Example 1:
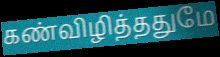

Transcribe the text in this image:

கண்விழித்ததுமே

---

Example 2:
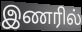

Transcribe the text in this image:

இணரில்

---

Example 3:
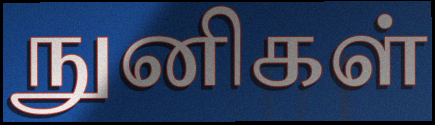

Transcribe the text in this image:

நுனிகள்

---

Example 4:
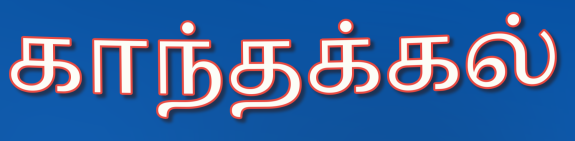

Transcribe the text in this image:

காந்தக்கல்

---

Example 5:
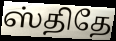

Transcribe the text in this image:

ஸ்திதே